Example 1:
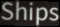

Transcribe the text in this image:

Ships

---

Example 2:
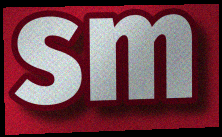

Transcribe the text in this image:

sm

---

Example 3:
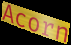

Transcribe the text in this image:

Acorn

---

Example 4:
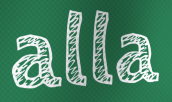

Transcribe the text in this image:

alla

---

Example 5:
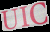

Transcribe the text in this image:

UIC